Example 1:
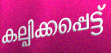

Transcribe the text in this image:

കല്പിക്കപ്പെട്ട്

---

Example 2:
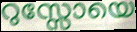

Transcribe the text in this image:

റുസ്സോയെ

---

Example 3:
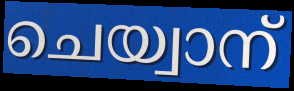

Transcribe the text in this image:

ചെയ്വാന്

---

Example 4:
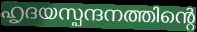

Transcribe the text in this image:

ഹൃദയസ്പന്ദനത്തിന്റെ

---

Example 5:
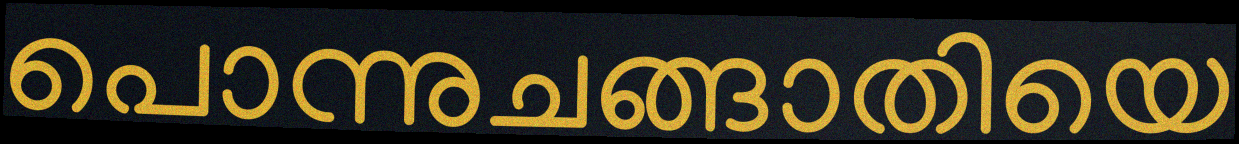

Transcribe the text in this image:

പൊന്നുചങ്ങാതിയെ